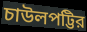
চাউলপট্টির